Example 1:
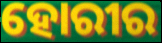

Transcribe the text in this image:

ହୋରୀର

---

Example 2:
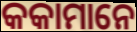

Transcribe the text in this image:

କକାମାନେ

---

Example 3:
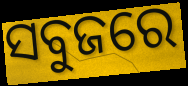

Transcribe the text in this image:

ସବୁଜରେ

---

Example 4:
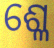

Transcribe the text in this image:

ଶ୍ଳେ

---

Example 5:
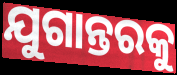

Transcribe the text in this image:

ଯୁଗାନ୍ତରକୁ